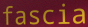
fascia